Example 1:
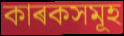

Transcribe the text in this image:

কাৰকসমূহ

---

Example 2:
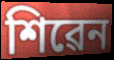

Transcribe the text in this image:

শিৱেন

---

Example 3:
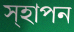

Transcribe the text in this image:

স্হাপন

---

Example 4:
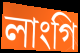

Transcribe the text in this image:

লাংগি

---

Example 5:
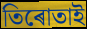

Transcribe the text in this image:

তিৰোতাই